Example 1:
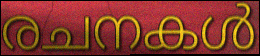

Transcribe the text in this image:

രചനകൾ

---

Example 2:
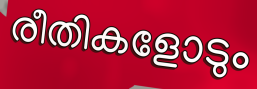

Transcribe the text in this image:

രീതികളോടും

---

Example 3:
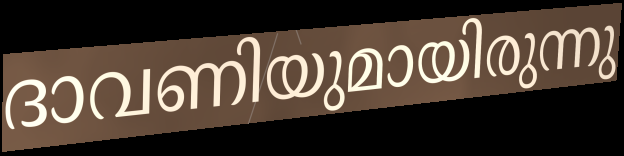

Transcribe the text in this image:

ദാവണിയുമായിരുന്നു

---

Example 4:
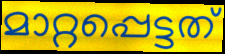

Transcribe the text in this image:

മാറ്റപ്പെട്ടത്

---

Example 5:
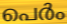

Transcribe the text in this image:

പെർം